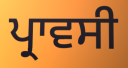
ਪ੍ਰਾਵਸੀ